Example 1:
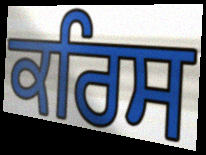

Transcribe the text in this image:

ਕਰਿਸ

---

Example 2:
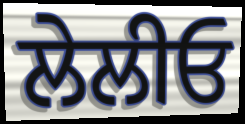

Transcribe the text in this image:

ਲੇਲੀਓ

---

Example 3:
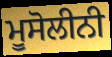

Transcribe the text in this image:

ਮੂਸੋਲੀਨੀ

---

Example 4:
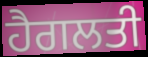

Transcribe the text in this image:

ਹੈਗਲਤੀ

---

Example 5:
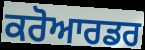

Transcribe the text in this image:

ਕਰੋਆਰਡਰ